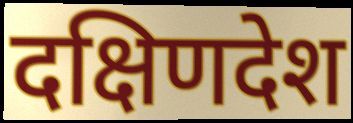
दक्षिणदेश